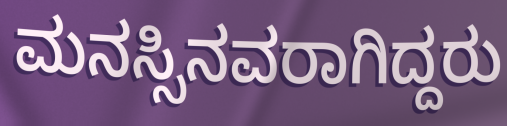
ಮನಸ್ಸಿನವರಾಗಿದ್ದರು